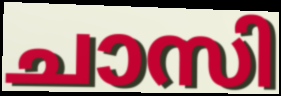
ചാസി